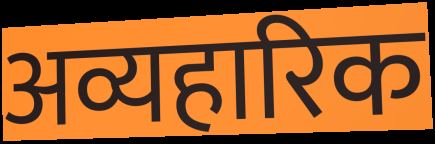
अव्यहारिक